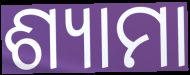
ଶ୍ୟାମା